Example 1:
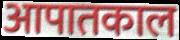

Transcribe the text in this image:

आपातकाल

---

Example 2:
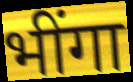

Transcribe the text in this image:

भींगा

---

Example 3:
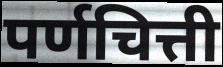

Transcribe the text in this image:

पर्णचित्ती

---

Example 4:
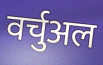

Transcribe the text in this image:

वर्चुअल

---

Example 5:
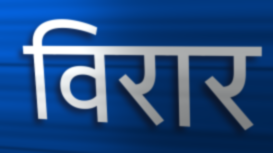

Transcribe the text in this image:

विरार